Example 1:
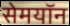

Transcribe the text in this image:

सेमयॉन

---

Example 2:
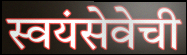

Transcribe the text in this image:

स्वयंसेवेची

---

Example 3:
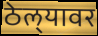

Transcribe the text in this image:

ठेल्यावर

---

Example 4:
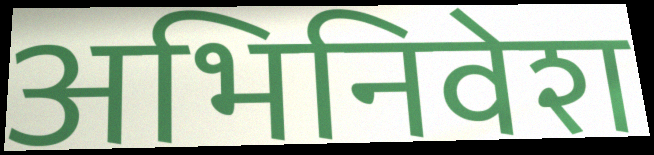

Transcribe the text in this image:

अभिनिवेश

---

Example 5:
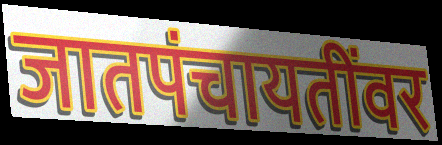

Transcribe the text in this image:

जातपंचायतींवर